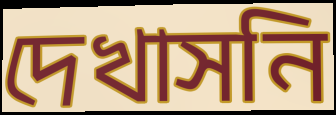
দেখাসনি